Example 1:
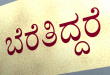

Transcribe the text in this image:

ಬೆರೆತಿದ್ದರೆ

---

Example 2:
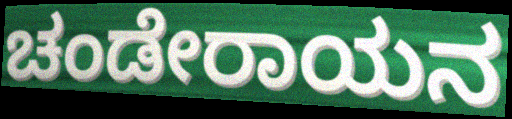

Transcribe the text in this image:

ಚಂಡೇರಾಯನ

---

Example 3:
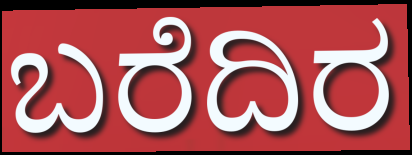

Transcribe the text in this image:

ಬರೆದಿರ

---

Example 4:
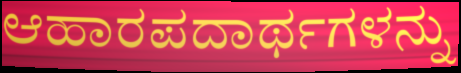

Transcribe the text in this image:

ಆಹಾರಪದಾರ್ಥಗಳನ್ನು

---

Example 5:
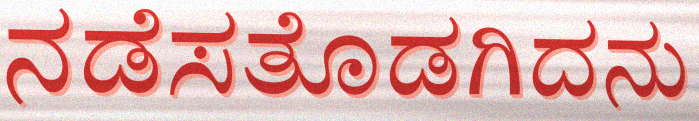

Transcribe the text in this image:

ನಡೆಸತೊಡಗಿದನು